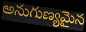
అనుగుణ్యమైన